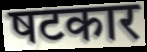
षटकार